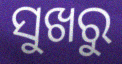
ସୁଖରୁ